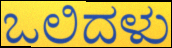
ಒಲಿದಳು